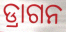
ଡ୍ରାଗନ